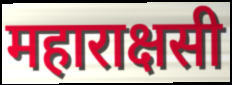
महाराक्षसी